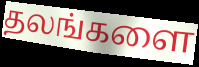
தலங்களை